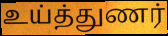
உய்த்துணர்